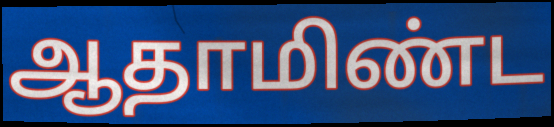
ஆதாமிண்ட